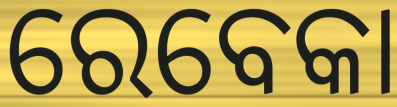
ରେବେକା